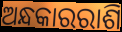
ଅନ୍ଧକାରରାଶି